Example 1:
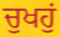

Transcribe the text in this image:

ਚੁਖਹੁਂ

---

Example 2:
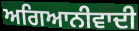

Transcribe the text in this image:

ਅਗਿਆਨੀਵਾਦੀ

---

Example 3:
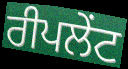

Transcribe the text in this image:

ਰੀਪਲੇਂਟ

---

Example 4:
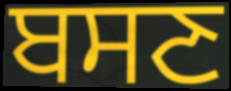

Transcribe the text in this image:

ਬਸਣ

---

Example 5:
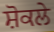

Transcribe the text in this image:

ਸ਼ੋਕਲੇ